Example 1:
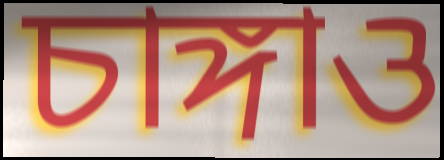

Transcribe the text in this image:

চাঙ্গাও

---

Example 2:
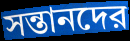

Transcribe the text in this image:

সন্তানদের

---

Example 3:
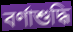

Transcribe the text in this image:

বর্ণাশুদ্ধি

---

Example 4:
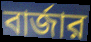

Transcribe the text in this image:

বার্জার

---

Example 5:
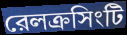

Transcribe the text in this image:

রেলক্রসিংটি